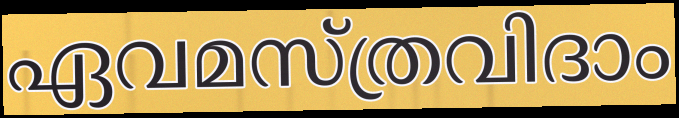
ഏവമസ്ത്രവിദാം